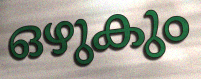
ഒഴുകും